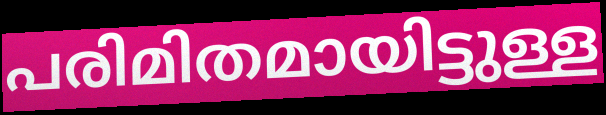
പരിമിതമായിട്ടുള്ള